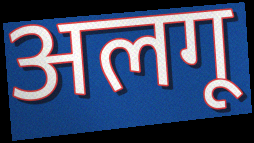
अलगू